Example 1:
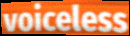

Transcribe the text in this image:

voiceless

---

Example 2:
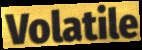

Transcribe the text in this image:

Volatile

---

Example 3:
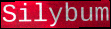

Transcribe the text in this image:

Silybum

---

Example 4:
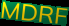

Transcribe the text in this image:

MDRF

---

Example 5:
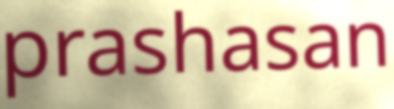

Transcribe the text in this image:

prashasan